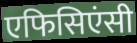
एफिसिएंसी